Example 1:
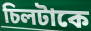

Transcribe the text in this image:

চিলটাকে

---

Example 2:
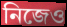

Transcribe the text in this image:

নিজেও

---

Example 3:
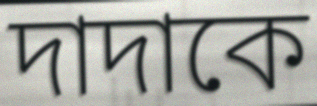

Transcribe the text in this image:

দাদাকে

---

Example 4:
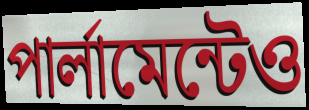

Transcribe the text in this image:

পার্লামেন্টেও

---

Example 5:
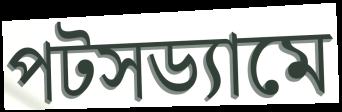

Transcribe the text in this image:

পটসড্যামে